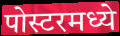
पोस्टरमध्ये